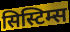
सिस्टिम्स